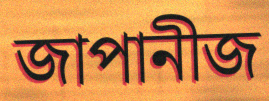
জাপানীজ